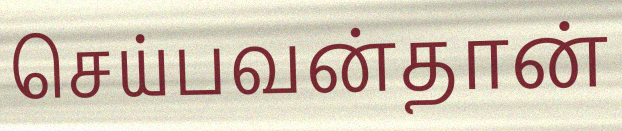
செய்பவன்தான்